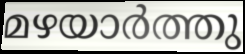
മഴയാർത്തു